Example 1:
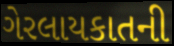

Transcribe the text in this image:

ગેરલાયકાતની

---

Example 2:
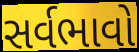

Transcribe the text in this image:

સર્વભાવો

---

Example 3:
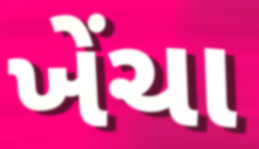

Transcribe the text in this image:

ખેંચા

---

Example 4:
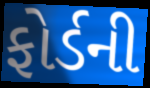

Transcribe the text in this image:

ફોર્ડની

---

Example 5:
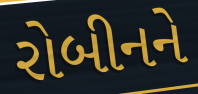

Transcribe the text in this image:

રોબીનને